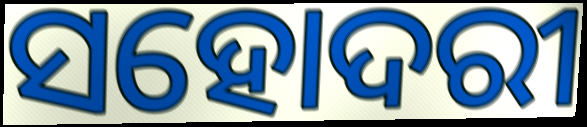
ସହୋଦରୀ